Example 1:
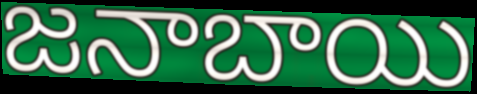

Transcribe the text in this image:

జనాబాయి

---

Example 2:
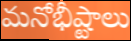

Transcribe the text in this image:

మనోభీష్టాలు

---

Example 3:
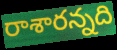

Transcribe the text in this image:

రాశారన్నది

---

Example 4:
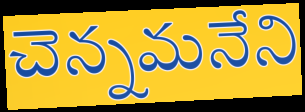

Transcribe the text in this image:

చెన్నమనేని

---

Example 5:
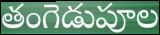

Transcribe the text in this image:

తంగెడుపూల